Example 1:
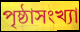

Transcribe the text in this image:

পৃষ্ঠাসংখ্যা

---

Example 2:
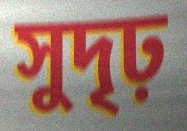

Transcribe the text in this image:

সুদৃঢ়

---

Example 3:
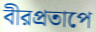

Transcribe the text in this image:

বীরপ্রতাপে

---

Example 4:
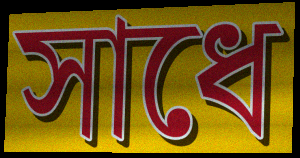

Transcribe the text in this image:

সাধে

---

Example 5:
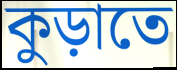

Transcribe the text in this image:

কুড়াতে